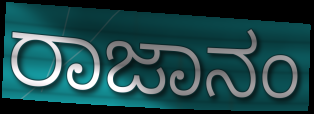
ರಾಜಾನಂ